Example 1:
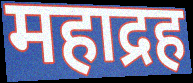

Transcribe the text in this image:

महाद्रह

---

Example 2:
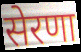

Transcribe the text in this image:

सेरणा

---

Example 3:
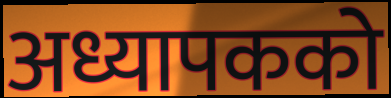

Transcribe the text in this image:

अध्यापकको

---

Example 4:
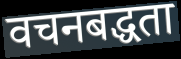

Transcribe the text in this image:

वचनबद्धता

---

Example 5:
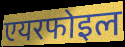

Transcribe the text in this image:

एयरफोइल